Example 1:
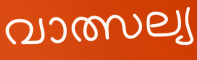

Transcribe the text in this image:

വാത്സല്യ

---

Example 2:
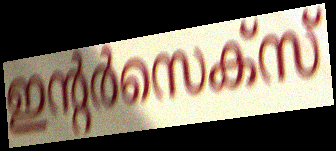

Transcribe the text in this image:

ഇന്റർസെക്സ്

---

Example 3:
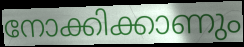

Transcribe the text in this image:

നോക്കിക്കാണും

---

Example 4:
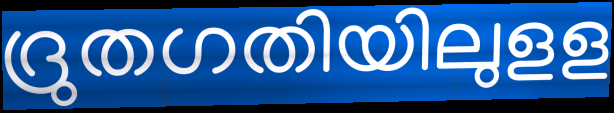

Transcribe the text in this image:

ദ്രുതഗതിയിലുളള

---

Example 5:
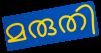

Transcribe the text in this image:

മരുതി